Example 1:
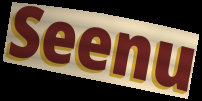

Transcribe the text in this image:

Seenu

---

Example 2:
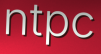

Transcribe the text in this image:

ntpc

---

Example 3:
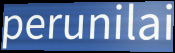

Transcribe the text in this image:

perunilai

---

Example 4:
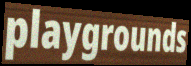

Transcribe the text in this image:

playgrounds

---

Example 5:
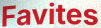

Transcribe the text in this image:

Favites